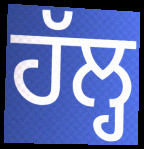
ਹੱਲ੍ਹ